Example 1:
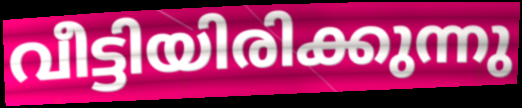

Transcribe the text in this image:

വീട്ടിയിരിക്കുന്നു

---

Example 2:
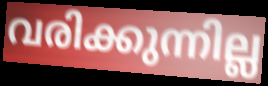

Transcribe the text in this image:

വരിക്കുന്നില്ല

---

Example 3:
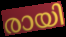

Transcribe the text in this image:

രായി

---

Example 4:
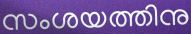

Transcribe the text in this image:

സംശയത്തിനു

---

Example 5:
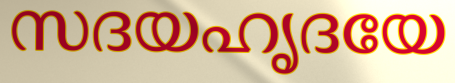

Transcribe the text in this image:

സദയഹൃദയേ